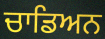
ਚਾਡਿਅਨ